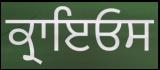
ਕ੍ਰਾਇਓਸ